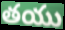
తయు